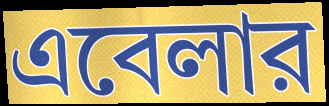
এবেলার